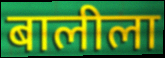
बालीला